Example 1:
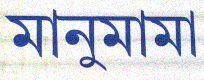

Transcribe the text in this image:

মানুমামা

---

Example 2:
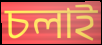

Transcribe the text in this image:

চলাই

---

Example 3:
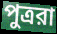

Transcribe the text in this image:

পুত্ররা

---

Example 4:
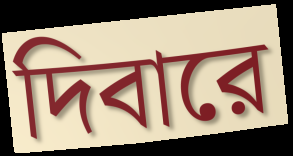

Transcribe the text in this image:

দিবারে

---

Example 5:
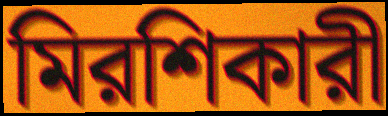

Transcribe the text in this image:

মিরশিকারী